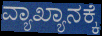
ವ್ಯಾಖ್ಯಾನಕ್ಕೆ